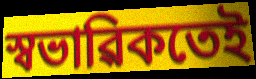
স্বভাৱিকতেই